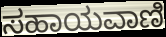
ಸಹಾಯವಾಣಿ